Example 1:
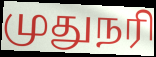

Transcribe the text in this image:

முதுநரி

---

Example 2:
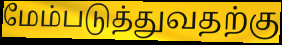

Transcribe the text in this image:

மேம்படுத்துவதற்கு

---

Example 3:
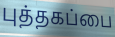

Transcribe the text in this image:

புத்தகப்பை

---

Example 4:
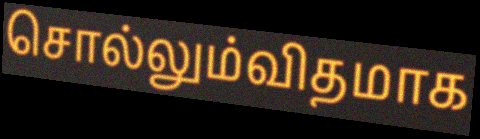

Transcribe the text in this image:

சொல்லும்விதமாக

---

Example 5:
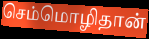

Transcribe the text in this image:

செம்மொழிதான்